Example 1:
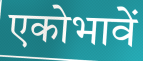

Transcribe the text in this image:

एकोभावें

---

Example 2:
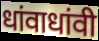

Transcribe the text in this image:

धांवाधांवी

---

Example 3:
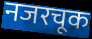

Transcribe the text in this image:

नजरचूक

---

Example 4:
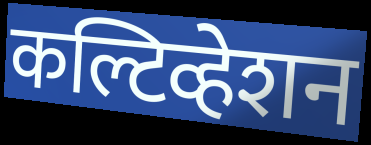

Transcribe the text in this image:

कल्टिव्हेशन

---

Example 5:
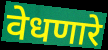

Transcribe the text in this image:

वेधणारे